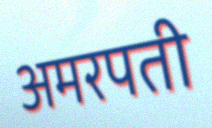
अमरपती